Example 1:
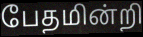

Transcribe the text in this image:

பேதமின்றி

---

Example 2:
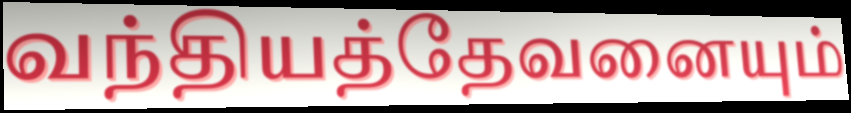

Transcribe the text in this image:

வந்தியத்தேவனையும்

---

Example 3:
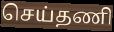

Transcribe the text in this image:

செய்தணி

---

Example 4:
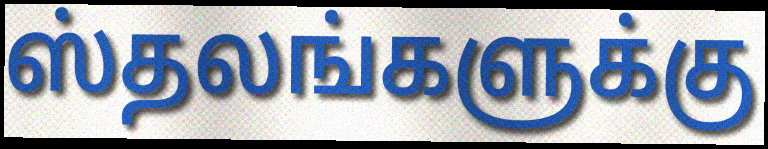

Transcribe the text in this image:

ஸ்தலங்களுக்கு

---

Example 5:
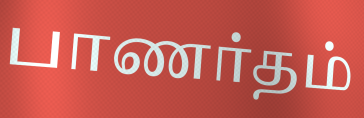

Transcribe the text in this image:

பாணர்தம்